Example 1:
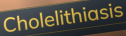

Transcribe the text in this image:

Cholelithiasis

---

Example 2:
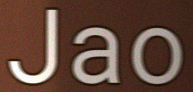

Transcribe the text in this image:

Jao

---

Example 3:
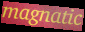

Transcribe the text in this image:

magnatic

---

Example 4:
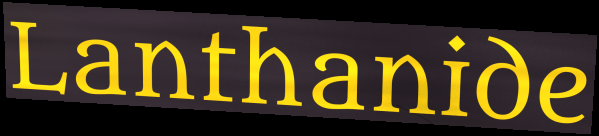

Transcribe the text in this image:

Lanthanide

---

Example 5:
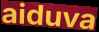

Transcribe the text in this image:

aiduva